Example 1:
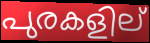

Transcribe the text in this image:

പുരകളില്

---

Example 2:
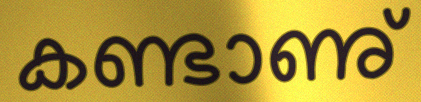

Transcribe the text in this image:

കണ്ടാണു്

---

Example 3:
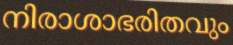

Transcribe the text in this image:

നിരാശാഭരിതവും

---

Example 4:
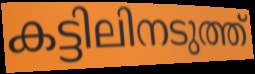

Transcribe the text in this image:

കട്ടിലിനടുത്ത്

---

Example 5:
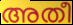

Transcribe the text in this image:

അതീ